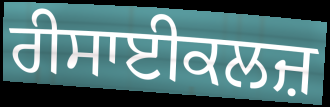
ਰੀਸਾਈਕਲਜ਼